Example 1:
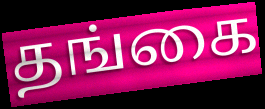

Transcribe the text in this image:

தங்கை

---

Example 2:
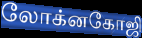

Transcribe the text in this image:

லோக்னகோஜி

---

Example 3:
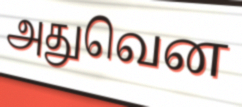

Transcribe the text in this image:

அதுவென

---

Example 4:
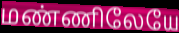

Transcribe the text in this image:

மண்ணிலேயே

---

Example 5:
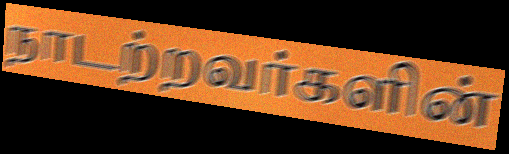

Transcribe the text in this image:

நாடற்றவர்களின்